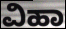
ವಿಹಾ